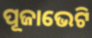
ପୂଜାଭେଟି